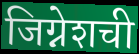
जिग्नेशची